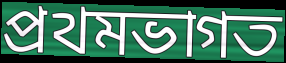
প্ৰথমভাগত